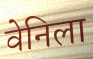
वेनिला